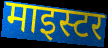
माइस्टर